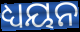
ଧ୍ୟୟନ